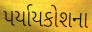
પર્યાયકોશના